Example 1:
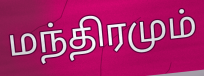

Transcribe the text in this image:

மந்திரமும்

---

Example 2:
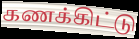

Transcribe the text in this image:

கணக்கிட்டு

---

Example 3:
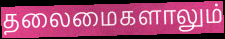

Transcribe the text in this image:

தலைமைகளாலும்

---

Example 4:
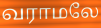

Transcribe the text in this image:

வராமலே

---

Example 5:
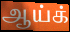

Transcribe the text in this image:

ஆய்க்